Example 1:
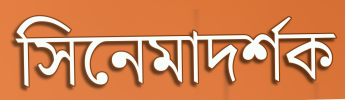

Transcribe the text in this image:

সিনেমাদর্শক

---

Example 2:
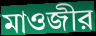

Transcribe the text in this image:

মাওজীর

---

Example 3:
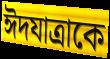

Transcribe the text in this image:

ঈদযাত্রাকে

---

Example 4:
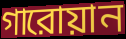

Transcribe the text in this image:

গারোয়ান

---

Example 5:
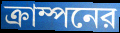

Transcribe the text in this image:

ক্রাম্পনের